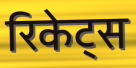
रिकेट्स